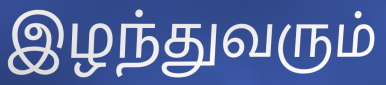
இழந்துவரும்